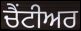
ਚੈਂਟੀਅਰ